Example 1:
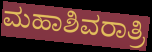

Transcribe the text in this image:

ಮಹಾಶಿವರಾತ್ರಿ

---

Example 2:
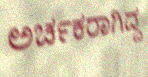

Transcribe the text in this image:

ಅರ್ಚಕರಾಗಿದ್ದ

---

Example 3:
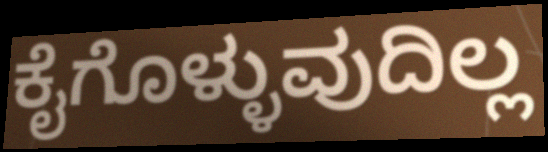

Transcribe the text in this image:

ಕೈಗೊಳ್ಳುವುದಿಲ್ಲ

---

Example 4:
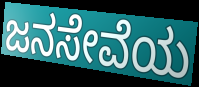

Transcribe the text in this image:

ಜನಸೇವೆಯ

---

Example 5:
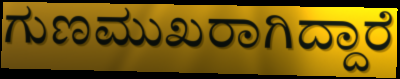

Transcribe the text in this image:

ಗುಣಮುಖರಾಗಿದ್ದಾರೆ